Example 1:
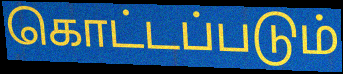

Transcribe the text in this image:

கொட்டப்படும்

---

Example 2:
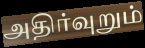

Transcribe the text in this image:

அதிர்வுறும்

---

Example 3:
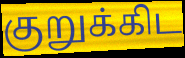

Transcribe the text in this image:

குறுக்கிட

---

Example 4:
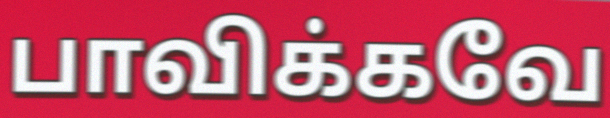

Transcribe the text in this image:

பாவிக்கவே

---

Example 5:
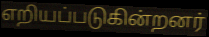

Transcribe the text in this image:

எறியப்படுகின்றனர்